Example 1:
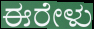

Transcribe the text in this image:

ಈರೇಳು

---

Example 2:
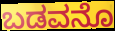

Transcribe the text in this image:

ಬಡವನೊ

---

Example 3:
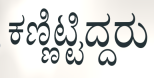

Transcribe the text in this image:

ಕಣ್ಣಿಟ್ಟಿದ್ದರು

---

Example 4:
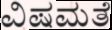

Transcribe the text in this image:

ವಿಷಮತೆ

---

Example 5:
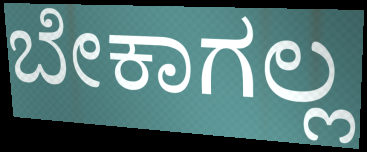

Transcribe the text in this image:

ಬೇಕಾಗಲ್ಲ